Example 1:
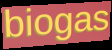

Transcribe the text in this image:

biogas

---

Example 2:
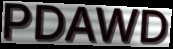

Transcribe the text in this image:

PDAWD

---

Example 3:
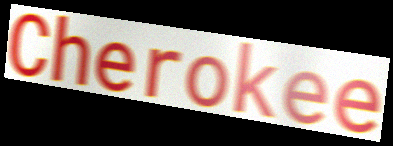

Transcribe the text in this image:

Cherokee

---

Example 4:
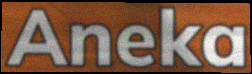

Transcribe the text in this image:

Aneka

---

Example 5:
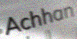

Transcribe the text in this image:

Achhan